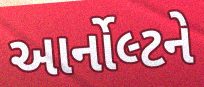
આર્નોલ્ટને